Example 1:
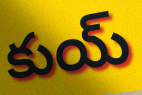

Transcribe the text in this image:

కుయ్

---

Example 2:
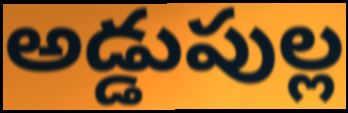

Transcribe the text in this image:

అడ్డుపుల్ల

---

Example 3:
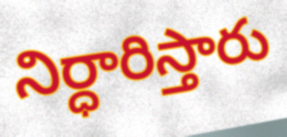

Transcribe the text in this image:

నిర్ధారిస్తారు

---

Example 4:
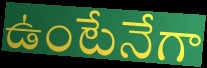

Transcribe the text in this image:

ఉంటేనేగా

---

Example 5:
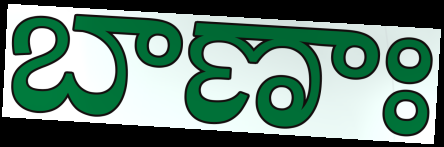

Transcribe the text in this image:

బాణాః